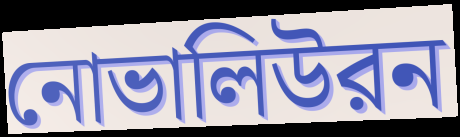
নোভালিউরন